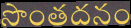
సొంతదనం